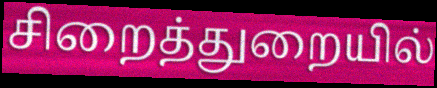
சிறைத்துறையில்